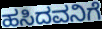
ಹಸಿದವನಿಗೆ